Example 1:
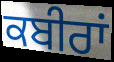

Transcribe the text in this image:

ਕਬੀਰਾਂ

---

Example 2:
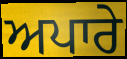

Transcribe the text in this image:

ਅਪਾਰੇ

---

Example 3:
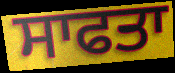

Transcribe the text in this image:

ਸਾਫਤਾ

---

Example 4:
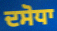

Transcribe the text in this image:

ਦਸੋਧਾ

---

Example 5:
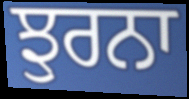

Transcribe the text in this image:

ਝੁਰਨਾ